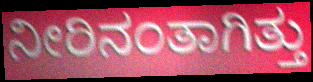
ನೀರಿನಂತಾಗಿತ್ತು